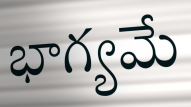
భాగ్యమే